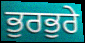
ਭੁਰਭੁਰੇ